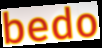
bedo